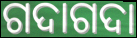
ଗଦାଗଦା